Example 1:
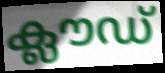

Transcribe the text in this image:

ക്ലൗഡ്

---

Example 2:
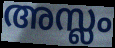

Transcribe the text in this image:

അസ്ലം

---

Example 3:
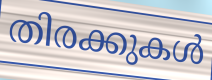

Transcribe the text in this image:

തിരക്കുകൾ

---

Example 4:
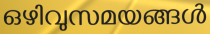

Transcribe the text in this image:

ഒഴിവുസമയങ്ങൾ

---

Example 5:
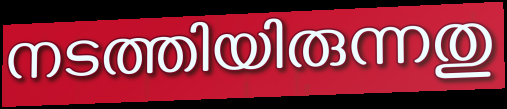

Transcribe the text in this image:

നടത്തിയിരുന്നതു